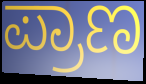
ಪ್ರಾಣ